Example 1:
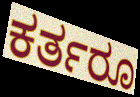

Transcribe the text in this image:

ಕರ್ತರೂ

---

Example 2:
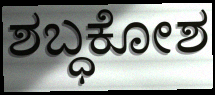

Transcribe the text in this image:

ಶಬ್ಧಕೋಶ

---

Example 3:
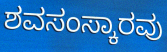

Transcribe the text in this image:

ಶವಸಂಸ್ಕಾರವು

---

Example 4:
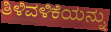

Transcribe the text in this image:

ತಿಳಿವಳಿಕೆಯನ್ನು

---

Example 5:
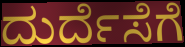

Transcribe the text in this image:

ದುರ್ದೆಸೆಗೆ